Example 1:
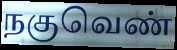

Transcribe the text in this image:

நகுவெண்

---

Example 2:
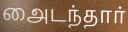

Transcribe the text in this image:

அைடந்தார்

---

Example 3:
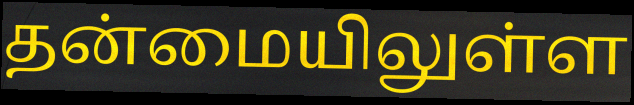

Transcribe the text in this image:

தன்மையிலுள்ள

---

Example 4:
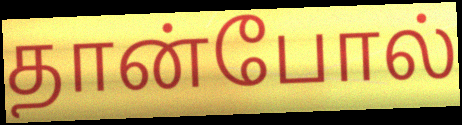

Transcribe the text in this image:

தான்போல்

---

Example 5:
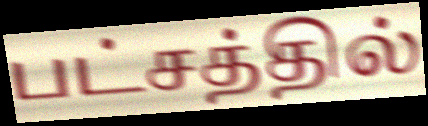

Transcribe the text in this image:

பட்சத்தில்